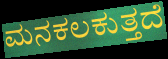
ಮನಕಲಕುತ್ತದೆ